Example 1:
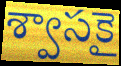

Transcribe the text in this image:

శ్వాసకై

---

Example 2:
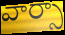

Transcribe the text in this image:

వార్సా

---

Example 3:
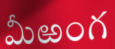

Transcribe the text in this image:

మీఱంగ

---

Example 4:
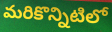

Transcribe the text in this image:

మరికొన్నిటిలో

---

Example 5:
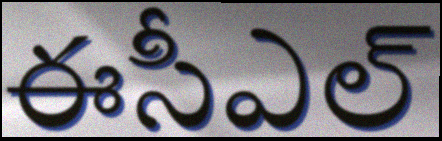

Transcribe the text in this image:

ఈసీఎల్